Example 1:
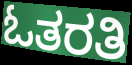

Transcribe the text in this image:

ಓತರತಿ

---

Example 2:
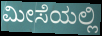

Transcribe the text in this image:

ಮೀಸೆಯಲ್ಲಿ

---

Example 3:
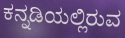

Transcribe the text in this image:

ಕನ್ನಡಿಯಲ್ಲಿರುವ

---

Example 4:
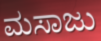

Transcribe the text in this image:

ಮಸಾಜು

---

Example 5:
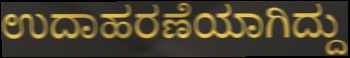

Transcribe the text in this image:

ಉದಾಹರಣೆಯಾಗಿದ್ದು